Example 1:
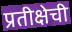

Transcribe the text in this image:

प्रतीक्षेची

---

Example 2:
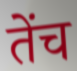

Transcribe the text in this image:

तेंच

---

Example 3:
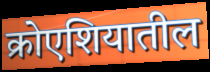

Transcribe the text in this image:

क्रोएशियातील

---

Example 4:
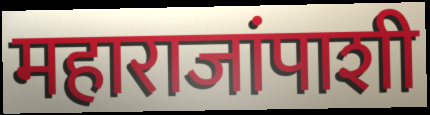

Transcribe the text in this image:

महाराजांपाशी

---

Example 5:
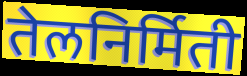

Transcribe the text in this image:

तेलनिर्मिती